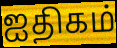
ஐதிகம்